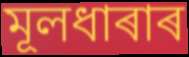
মূলধাৰাৰ